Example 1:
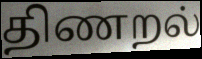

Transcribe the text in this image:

திணறல்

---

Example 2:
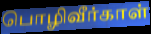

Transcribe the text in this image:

பொழிவீர்காள்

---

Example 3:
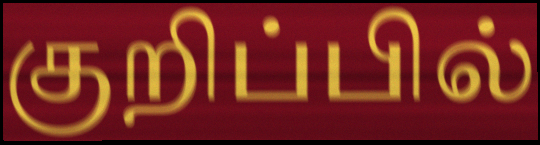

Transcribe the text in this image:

குறிப்பில்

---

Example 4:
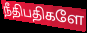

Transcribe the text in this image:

நீதிபதிகளே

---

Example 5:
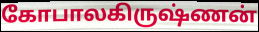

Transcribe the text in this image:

கோபாலகிருஷ்ணன்